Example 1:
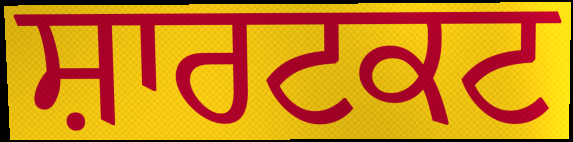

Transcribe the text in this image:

ਸ਼ਾਰਟਕਟ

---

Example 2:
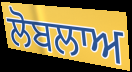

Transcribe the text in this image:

ਲੋਬਲਾਅ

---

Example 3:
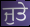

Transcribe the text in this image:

ਜੁਤੇ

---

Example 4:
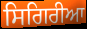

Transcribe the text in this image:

ਸਿਗਿਰੀਆ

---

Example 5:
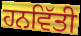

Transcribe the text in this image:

ਹਨਵਿੱਤੀ